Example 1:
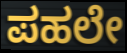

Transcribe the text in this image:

ಪಹಲೇ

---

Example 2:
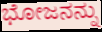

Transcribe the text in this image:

ಭೋಜನನ್ನು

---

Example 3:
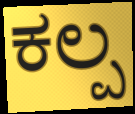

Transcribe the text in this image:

ಕಲ್ಪ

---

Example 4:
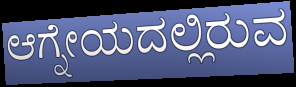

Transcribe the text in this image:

ಆಗ್ನೇಯದಲ್ಲಿರುವ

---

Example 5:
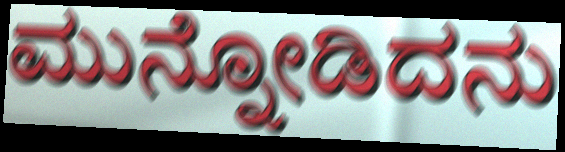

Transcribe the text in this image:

ಮುನ್ನೋಡಿದನು